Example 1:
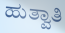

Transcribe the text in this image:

ಹುತ್ವಾತಿ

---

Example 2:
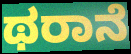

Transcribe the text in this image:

ಥರಾನೆ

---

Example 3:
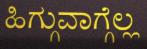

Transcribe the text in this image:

ಹಿಗ್ಗುವಾಗ್ಗೆಲ್ಲ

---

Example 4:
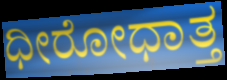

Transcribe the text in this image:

ಧೀರೋಧಾತ್ತ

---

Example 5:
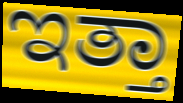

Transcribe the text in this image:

ಇತ್ತಾ